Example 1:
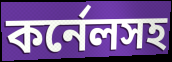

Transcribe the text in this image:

কর্নেলসহ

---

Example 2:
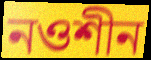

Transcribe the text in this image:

নওশীন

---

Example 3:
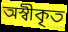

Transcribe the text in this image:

অস্বীকৃত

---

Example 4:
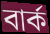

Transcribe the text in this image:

বার্ক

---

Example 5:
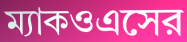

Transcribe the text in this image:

ম্যাকওএসের